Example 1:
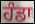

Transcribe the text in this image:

ਹੰਡਾ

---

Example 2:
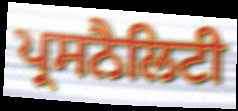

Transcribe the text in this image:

ਪ੍ਰਸਨੈਲਿਟੀ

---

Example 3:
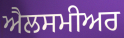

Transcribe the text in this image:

ਐਲਸਮੀਅਰ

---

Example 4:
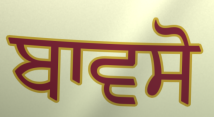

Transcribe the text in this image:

ਬਾਵਸੋ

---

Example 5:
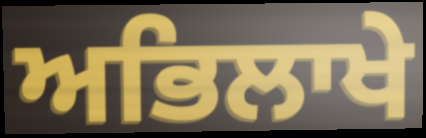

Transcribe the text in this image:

ਅਭਿਲਾਖੇ